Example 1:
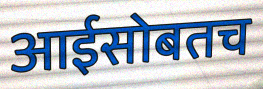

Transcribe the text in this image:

आईसोबतच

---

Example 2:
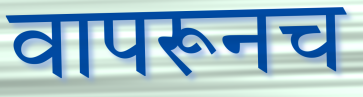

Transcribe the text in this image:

वापरूनच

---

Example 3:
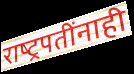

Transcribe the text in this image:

राष्ट्रपतींनाही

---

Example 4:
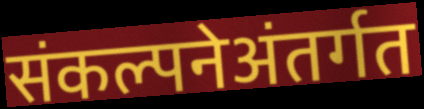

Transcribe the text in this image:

संकल्पनेअंतर्गत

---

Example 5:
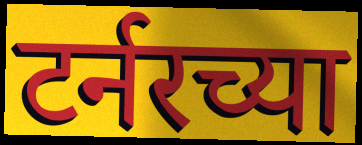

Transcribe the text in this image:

टर्नरच्या